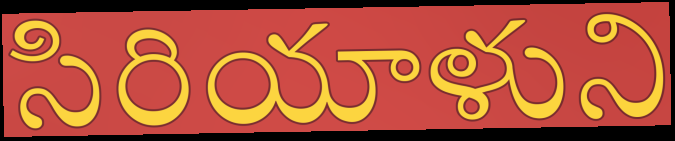
సిరియాళుని